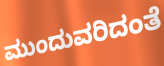
ಮುಂದುವರಿದಂತೆ